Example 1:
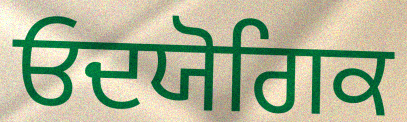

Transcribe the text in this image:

ਓਦਯੋਗਿਕ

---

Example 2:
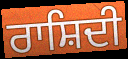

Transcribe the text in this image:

ਰਾਸ਼ਿਦੀ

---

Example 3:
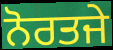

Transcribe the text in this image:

ਨੋਰਤਜੇ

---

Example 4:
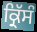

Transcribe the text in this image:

ਕ੍ਰਿੱਸੰ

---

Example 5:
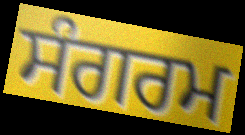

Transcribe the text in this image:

ਸੰਗਰਮ